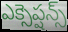
ఎక్సెప్షన్స్